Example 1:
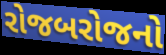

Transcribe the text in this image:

રોજબરોજનો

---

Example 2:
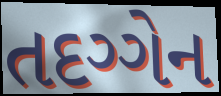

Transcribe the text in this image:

તદગ્ગેન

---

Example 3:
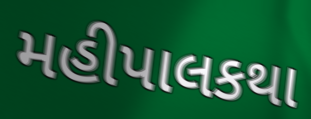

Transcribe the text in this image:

મહીપાલકથા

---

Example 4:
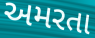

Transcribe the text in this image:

અમરતા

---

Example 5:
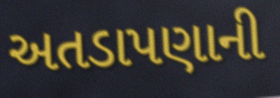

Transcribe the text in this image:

અતડાપણાની